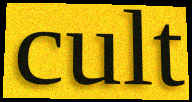
cult